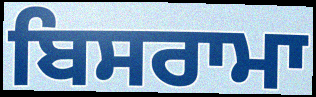
ਬਿਸਰਾਮਾ